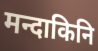
मन्दाकिनि